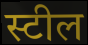
स्टील